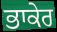
ਭਾਕੇਰ